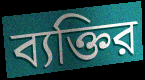
ব্যক্তির